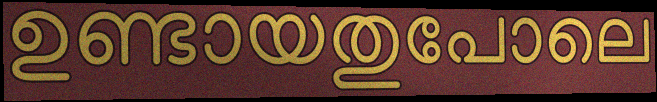
ഉണ്ടായതുപോലെ